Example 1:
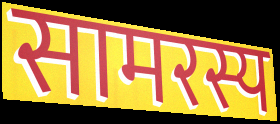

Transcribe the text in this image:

सामरस्य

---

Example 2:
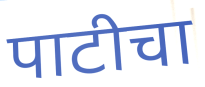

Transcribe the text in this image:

पाटीचा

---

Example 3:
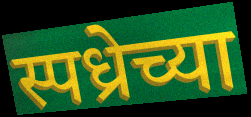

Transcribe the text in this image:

स्पध्रेच्या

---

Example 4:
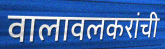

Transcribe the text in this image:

वालावलकरांची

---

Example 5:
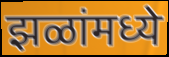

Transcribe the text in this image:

झळांमध्ये